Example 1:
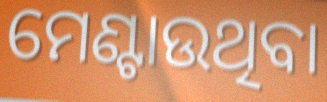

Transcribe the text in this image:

ମେଣ୍ଟାଉଥିବା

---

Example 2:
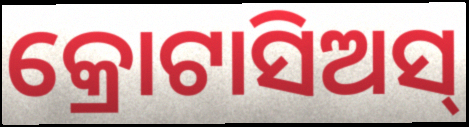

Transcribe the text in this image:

କ୍ରୋଟାସିଅସ୍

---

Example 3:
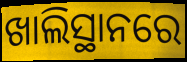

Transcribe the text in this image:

ଖାଲିସ୍ଥାନରେ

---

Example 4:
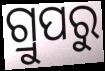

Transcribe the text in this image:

ଗ୍ରୁପରୁ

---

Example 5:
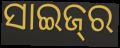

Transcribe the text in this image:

ସାଇଜ୍‌ର